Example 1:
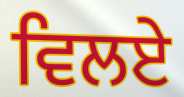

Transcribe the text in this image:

ਵਿਲਏ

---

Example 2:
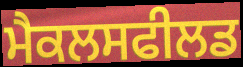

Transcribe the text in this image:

ਮੈਕਲਸਫੀਲਡ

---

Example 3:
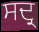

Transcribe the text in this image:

ਸਦ੍ਰ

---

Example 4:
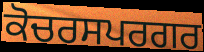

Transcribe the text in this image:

ਕੋਚਰਸਪਰਗਰ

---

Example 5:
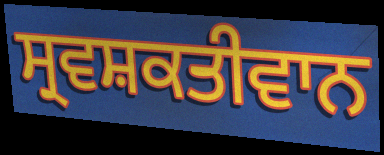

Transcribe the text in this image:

ਸ੍ਰਵਸ਼ਕਤੀਵਾਨ